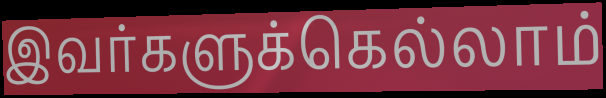
இவர்களுக்கெல்லாம்